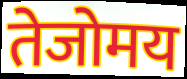
तेजोमय